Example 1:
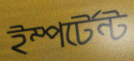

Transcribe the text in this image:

ইম্পর্টেন্ট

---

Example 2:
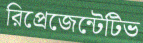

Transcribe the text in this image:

রিপ্রেজেন্টেটিভ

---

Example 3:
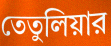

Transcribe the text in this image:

তেতুলিয়ার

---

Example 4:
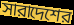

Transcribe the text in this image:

সারাদেশের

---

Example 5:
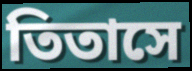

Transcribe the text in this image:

তিতাসে